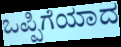
ಒಪ್ಪಿಗೆಯಾದ